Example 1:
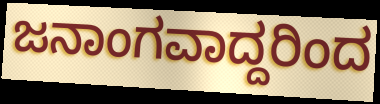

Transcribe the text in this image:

ಜನಾಂಗವಾದ್ದರಿಂದ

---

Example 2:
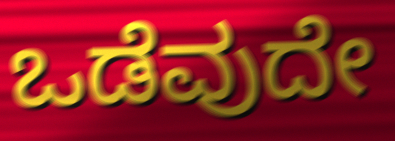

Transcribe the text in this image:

ಒಡೆವುದೇ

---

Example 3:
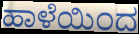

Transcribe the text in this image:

ಹಾಳೆಯಿಂದ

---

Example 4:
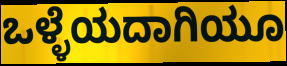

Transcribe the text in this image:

ಒಳ್ಳೆಯದಾಗಿಯೂ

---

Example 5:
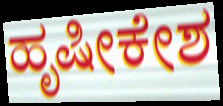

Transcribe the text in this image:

ಹೃಷೀಕೇಶ